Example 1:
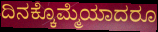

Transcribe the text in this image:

ದಿನಕ್ಕೊಮ್ಮೆಯಾದರೂ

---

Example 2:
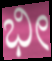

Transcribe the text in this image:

ಭೀ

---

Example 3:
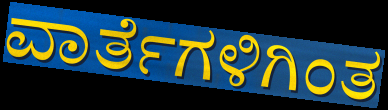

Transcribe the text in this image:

ವಾರ್ತೆಗಳಿಗಿಂತ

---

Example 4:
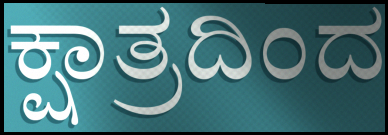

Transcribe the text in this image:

ಕ್ಷಾತ್ರದಿಂದ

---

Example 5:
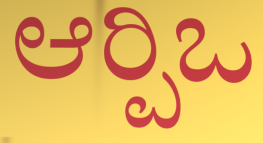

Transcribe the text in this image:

ಆರ್‍ಪಿಒ